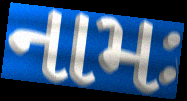
નામઃ